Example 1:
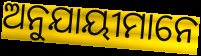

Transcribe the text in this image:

ଅନୁଯାୟୀମାନେ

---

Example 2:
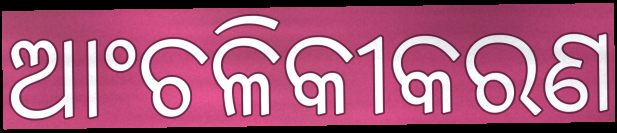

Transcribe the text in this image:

ଆଂଚଳିକୀକରଣ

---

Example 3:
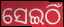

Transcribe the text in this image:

ସେଇଠିଁ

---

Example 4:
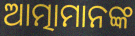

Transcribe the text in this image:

ଆତ୍ମାମାନଙ୍କ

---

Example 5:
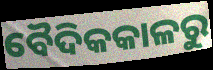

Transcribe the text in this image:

ବୈଦିକକାଳରୁ